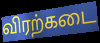
விரற்கடை